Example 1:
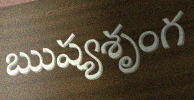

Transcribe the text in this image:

ఋష్యశృంగ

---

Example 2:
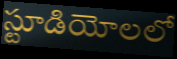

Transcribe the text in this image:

స్టూడియోలలో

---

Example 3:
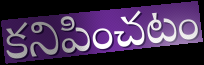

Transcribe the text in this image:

కనిపించటం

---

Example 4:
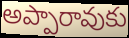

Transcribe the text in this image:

అప్పారావుకు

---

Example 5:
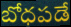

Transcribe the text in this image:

బోధపడే